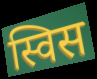
स्विस